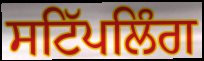
ਸਟਿੱਪਲਿੰਗ